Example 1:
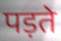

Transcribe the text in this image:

पड़ते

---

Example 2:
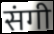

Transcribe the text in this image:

संगी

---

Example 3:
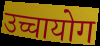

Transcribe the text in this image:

उच्चायोग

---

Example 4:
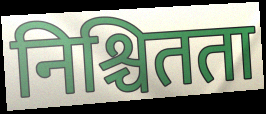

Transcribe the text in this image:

निश्चितता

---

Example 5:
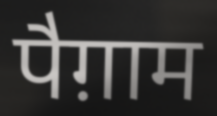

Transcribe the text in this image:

पैग़ाम